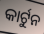
କାର୍ଟୁନ